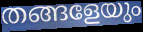
തങ്ങളേയും